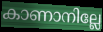
കാണാനില്ലേ